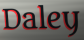
Daley